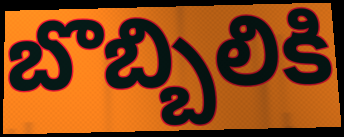
బొబ్బిలికి